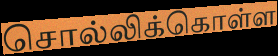
சொல்லிக்கொள்ள